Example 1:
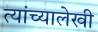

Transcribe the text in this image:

त्यांच्यालेखी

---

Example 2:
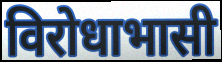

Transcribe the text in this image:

विरोधाभासी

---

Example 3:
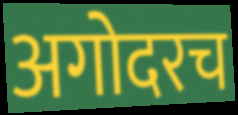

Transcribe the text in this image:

अगोदरच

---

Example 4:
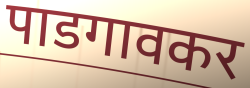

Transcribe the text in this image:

पाडगावकर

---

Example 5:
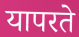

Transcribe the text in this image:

यापरते